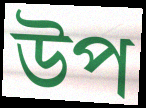
উপ